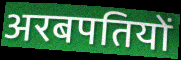
अरबपतियों